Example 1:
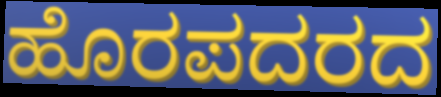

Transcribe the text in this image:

ಹೊರಪದರದ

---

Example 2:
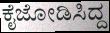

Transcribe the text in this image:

ಕೈಜೋಡಿಸಿದ್ದ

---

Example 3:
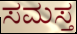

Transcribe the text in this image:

ಸಮಸ್ತ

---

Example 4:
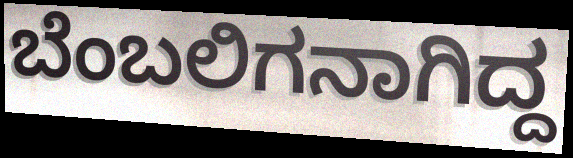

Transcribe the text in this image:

ಬೆಂಬಲಿಗನಾಗಿದ್ದ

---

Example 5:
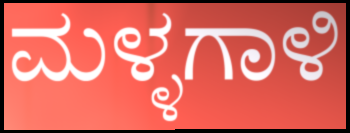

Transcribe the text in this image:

ಮಳ್ಳಗಾಳಿ